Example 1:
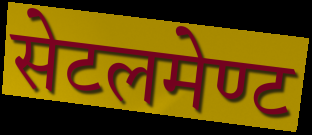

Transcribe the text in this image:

सेटलमेण्ट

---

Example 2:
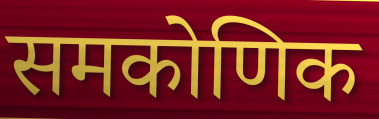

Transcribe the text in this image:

समकोणिक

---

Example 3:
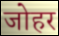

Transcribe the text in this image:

जोहर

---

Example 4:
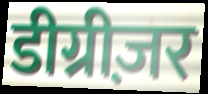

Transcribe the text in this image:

डीग्रीज़र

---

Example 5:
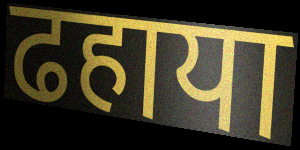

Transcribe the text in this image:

ढहाया